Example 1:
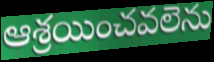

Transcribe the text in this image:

ఆశ్రయించవలెను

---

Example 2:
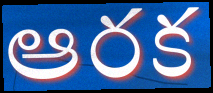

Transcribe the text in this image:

ఆరక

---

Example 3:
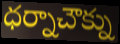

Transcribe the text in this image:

ధర్నాచౌక్ను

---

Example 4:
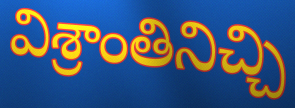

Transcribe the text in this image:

విశ్రాంతినిచ్చి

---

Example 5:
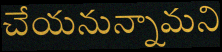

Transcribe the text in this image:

చేయనున్నామని